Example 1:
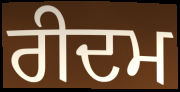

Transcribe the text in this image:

ਰੀਦਮ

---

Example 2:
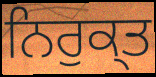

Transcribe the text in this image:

ਨਿਰੁਕ੍ਤ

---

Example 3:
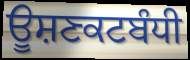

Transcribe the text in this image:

ਊਸ਼ਣਕਟਬੰਧੀ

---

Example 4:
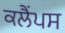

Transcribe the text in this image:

ਕਲੈਂਪਸ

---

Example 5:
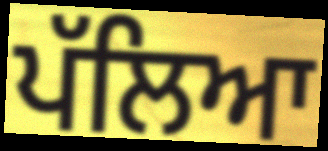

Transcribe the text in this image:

ਪੱਲਿਆ